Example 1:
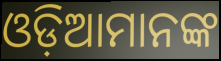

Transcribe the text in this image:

ଓଡ଼ିଆମାନଙ୍କ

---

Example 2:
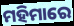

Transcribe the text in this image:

ମହିମାରେ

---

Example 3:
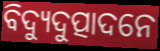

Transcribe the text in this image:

ବିଦ୍ଯୁଦୁତ୍ପାଦନେ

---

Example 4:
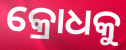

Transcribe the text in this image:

କ୍ରୋଧକୁ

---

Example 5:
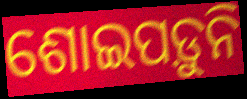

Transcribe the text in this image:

ଶୋଇପଡ଼ୁନି